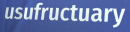
usufructuary